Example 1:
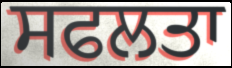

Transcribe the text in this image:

ਸਫਲਤਾ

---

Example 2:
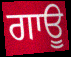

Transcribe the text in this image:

ਗਾਊ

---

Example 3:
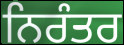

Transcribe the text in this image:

ਨਿਰੰਤਰ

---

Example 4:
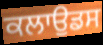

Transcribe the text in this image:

ਕਲਾਉਡਸ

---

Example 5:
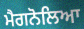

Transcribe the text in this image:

ਮੈਗਨੋਲਿਆ